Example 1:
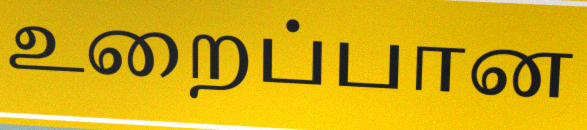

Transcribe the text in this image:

உறைப்பான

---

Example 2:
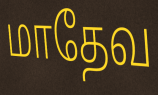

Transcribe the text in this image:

மாதேவ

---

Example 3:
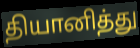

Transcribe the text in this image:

தியானித்து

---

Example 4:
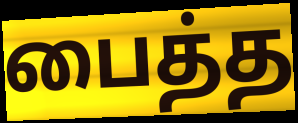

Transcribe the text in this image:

பைத்த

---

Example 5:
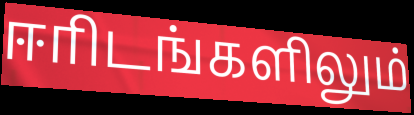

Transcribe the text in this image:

ஈரிடங்களிலும்